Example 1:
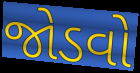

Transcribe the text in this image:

જોડવો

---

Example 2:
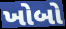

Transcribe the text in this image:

ખોબો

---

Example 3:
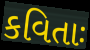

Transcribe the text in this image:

કવિતાઃ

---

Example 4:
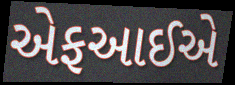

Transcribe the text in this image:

એફઆઈએ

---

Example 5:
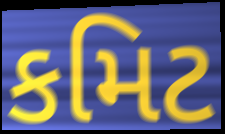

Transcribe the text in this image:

કમિટ